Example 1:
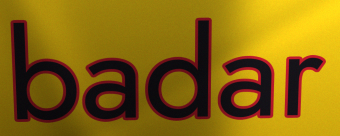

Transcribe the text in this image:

badar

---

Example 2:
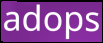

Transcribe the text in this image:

adops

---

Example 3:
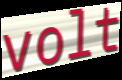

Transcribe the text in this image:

volt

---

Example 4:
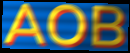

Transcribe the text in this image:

AOB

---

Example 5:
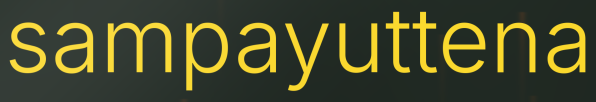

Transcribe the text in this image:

sampayuttena